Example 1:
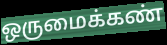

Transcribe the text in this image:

ஒருமைக்கண்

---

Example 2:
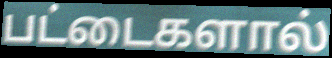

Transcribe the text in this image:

பட்டைகளால்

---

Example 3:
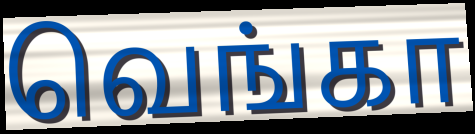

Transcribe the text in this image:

வெங்கா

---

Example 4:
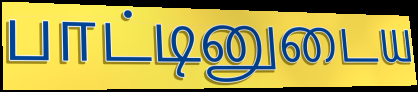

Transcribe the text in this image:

பாட்டினுடைய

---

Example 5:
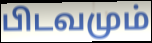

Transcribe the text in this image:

பிடவமும்